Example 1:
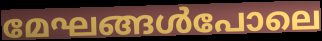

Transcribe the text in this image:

മേഘങ്ങൾപോലെ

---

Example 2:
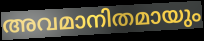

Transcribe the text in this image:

അവമാനിതമായും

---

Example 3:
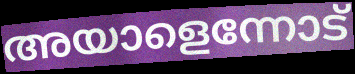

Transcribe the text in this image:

അയാളെന്നോട്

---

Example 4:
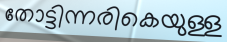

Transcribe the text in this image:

തോട്ടിന്നരികെയുള്ള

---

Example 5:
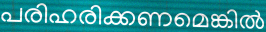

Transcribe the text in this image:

പരിഹരിക്കണമെങ്കിൽ